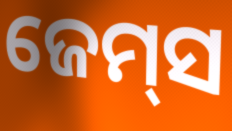
ଜେମ୍‍ସ